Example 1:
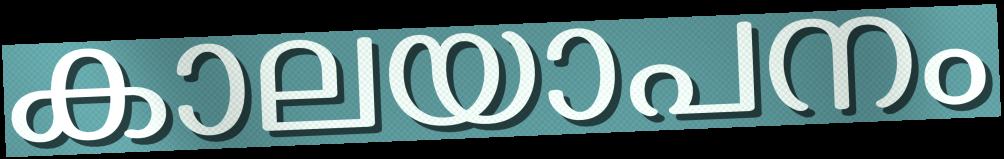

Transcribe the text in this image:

കാലയാപനം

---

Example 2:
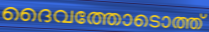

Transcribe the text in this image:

ദൈവത്തോടൊത്ത്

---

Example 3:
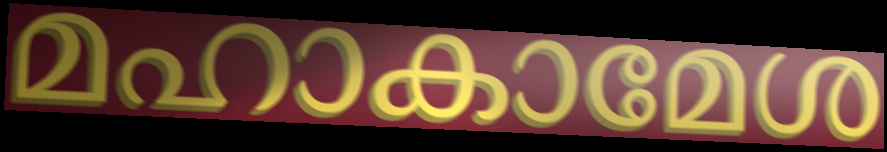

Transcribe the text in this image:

മഹാകാമേശ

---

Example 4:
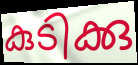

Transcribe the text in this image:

കുടിക്കു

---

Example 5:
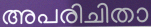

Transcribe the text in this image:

അപരിചിതാ